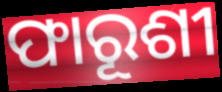
ଫାରୂଶୀ